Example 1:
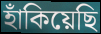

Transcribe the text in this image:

হাঁকিয়েছি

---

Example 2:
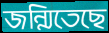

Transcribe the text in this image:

জন্মিতেছে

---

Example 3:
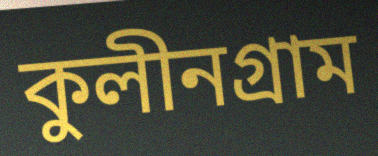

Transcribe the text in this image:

কুলীনগ্রাম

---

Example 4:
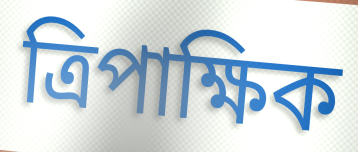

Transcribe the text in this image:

ত্রিপাক্ষিক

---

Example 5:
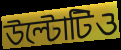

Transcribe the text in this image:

উল্টোটিও